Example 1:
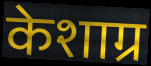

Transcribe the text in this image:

केशाग्र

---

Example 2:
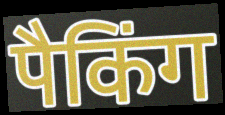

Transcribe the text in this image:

पैकिंग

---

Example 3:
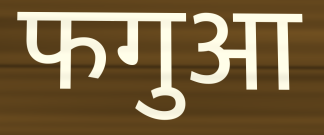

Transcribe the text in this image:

फगुआ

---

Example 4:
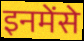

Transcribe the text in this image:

इनमेंसे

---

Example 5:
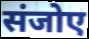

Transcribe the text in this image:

संजोए